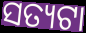
ସତ୍ୟଟା